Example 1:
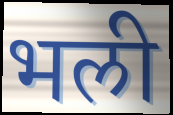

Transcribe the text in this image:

भली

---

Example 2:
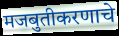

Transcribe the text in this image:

मजबुतीकरणाचे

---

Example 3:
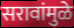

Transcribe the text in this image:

सरावांमुळे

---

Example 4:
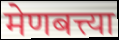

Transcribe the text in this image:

मेणबत्त्या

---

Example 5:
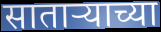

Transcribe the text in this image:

साताऱ्याच्या